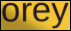
orey